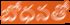
బోధనతో